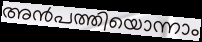
അൻപത്തിയൊന്നാം